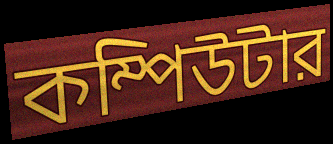
কম্পিউটার